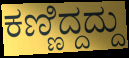
ಕಣ್ಣಿದ್ದದ್ದು